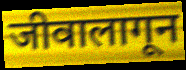
जीवालागून